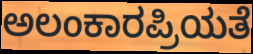
ಅಲಂಕಾರಪ್ರಿಯತೆ